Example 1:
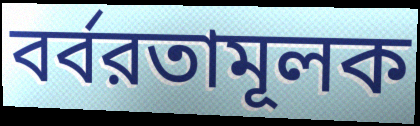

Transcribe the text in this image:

বর্বরতামূলক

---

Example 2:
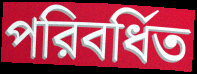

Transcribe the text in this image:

পরিবর্ধিত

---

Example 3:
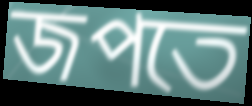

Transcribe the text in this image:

জপতে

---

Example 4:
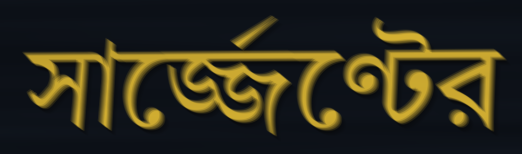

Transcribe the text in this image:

সার্জ্জেণ্টের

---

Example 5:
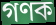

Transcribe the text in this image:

গণক